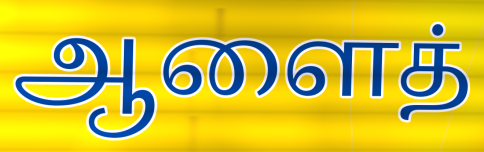
ஆளைத்